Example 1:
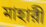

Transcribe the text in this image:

মাহারী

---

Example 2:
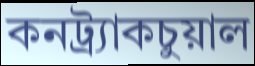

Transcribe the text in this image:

কনট্র্যাকচুয়াল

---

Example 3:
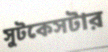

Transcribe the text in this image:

সুটকেসটার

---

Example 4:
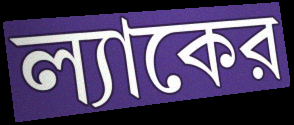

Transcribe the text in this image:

ল্যাকের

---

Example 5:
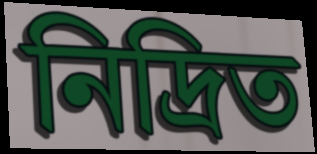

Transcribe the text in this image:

নিদ্রিত